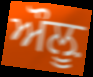
ਔਲ਼ੂ